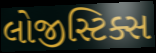
લોજીસ્ટિક્સ